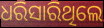
ଧରିସାରିଥିଲେ